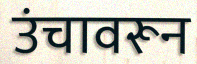
उंचावरून